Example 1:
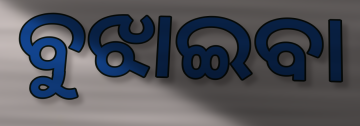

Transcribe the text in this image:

ବୁଝାଇବା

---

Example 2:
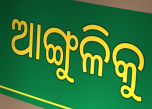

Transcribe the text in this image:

ଆଙ୍ଗୁଳିକୁ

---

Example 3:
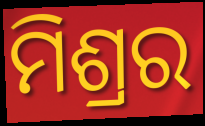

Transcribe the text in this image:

ମିଶ୍ରର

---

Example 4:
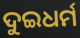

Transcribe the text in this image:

ଦୁଇଧର୍ମ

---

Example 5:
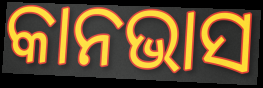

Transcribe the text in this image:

କାନଭାସ